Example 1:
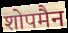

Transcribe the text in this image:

शोपमैन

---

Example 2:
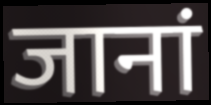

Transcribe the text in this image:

जानां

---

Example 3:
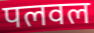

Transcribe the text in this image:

पलवल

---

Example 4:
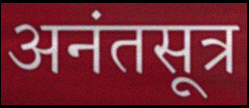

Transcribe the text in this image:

अनंतसूत्र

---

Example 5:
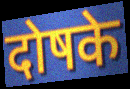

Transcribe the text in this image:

दोषके